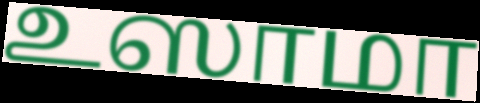
உஸாமா